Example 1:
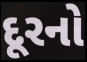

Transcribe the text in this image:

દૂરનો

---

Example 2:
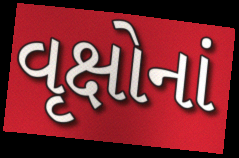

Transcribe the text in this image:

વૃક્ષોનાં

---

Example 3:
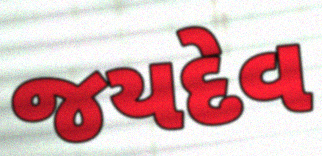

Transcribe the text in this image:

જયદેવ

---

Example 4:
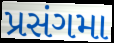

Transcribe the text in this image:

પ્રસંગમા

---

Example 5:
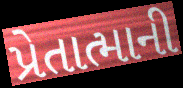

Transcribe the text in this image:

પ્રેતાત્માની